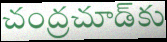
చంద్రచూడ్‌కు